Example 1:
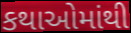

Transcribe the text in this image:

કથાઓમાંથી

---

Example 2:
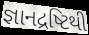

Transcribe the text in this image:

જ્ઞાનદ્રષ્ટિથી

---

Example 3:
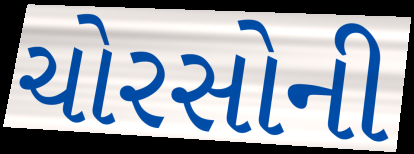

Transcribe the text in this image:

ચોરસોની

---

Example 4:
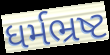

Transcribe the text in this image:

ધર્મભ્રષ્ટ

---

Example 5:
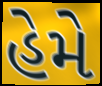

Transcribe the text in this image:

હેમે